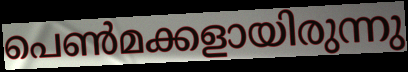
പെൺമക്കളായിരുന്നു